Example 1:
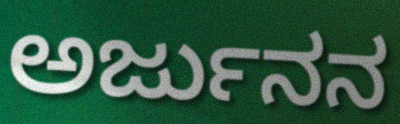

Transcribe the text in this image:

ಅರ್ಜುನನ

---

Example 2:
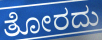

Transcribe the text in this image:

ತೋರದು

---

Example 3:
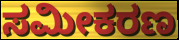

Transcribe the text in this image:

ಸಮೀಕರಣ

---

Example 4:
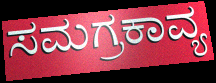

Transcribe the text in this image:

ಸಮಗ್ರಕಾವ್ಯ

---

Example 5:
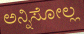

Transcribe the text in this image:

ಅನ್ನಿಸೋಲ್ಲ